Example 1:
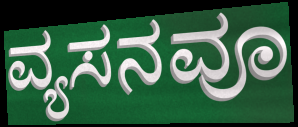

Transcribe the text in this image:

ವ್ಯಸನವೂ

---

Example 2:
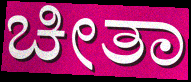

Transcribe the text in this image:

ಚೀತಾ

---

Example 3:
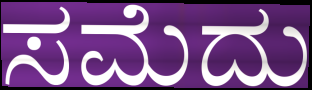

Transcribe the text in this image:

ಸಮೆದು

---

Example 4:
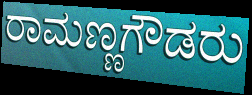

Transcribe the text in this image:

ರಾಮಣ್ಣಗೌಡರು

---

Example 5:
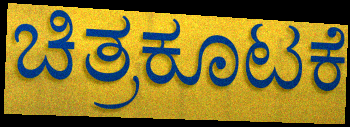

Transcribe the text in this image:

ಚಿತ್ರಕೂಟಕೆ